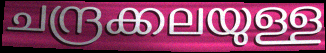
ചന്ദ്രക്കലയുള്ള